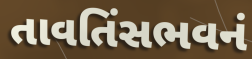
તાવતિંસભવનં